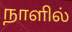
நாளில்